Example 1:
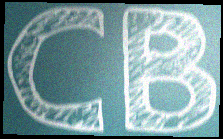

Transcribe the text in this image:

CB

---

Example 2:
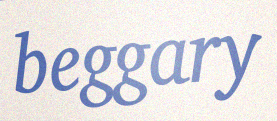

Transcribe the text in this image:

beggary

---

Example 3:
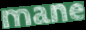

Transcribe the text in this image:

mane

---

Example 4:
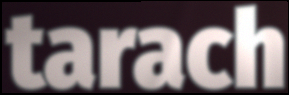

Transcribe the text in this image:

tarach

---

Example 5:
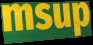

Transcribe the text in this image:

msup